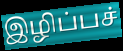
இழிப்பச்